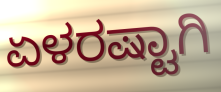
ಏಳರಷ್ಟಾಗಿ